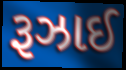
રૂઝાઈ